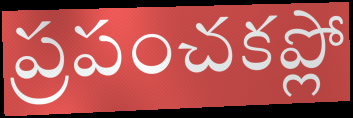
ప్రపంచకప్లో